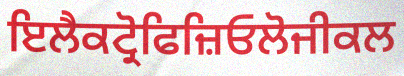
ਇਲੈਕਟ੍ਰੋਫਿਜ਼ਿਓਲੋਜੀਕਲ